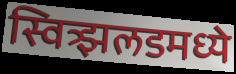
स्वित्र्झलडमध्ये